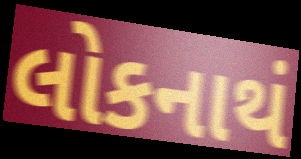
લોકનાથં